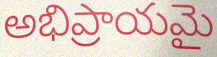
అభిప్రాయమై